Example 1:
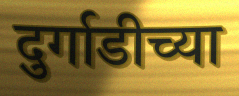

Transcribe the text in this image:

दुर्गाडीच्या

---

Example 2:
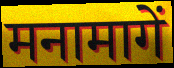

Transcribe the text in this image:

मनामागें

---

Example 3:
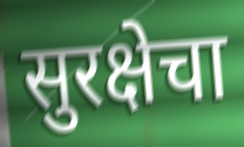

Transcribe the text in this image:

सुरक्षेचा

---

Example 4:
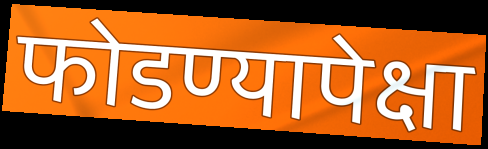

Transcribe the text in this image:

फोडण्यापेक्षा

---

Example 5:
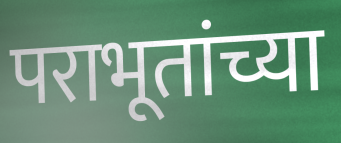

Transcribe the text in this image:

पराभूतांच्या